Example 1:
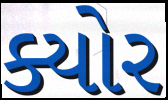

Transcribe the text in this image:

ક્યોર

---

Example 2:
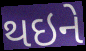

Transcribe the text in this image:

થઇને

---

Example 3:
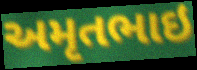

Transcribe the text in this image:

અમૃતભાઇ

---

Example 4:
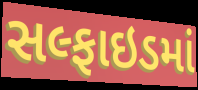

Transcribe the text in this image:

સલ્ફાઇડમાં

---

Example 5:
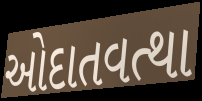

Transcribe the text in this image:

ઓદાતવત્થા